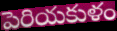
పెరియకుళం